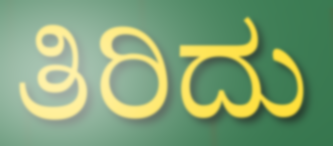
ತಿರಿದು